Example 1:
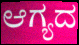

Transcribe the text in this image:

ಆಗ್ಯದ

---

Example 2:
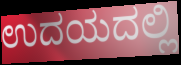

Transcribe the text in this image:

ಉದಯದಲ್ಲಿ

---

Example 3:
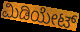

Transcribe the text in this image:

ಮಿಡಿಯೇಟ್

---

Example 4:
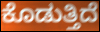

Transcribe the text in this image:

ಕೊಡುತ್ತಿದೆ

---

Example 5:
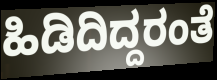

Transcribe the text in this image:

ಹಿಡಿದಿದ್ದರಂತೆ